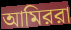
আমিররা